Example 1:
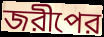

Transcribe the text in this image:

জরীপের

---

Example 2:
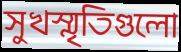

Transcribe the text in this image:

সুখস্মৃতিগুলো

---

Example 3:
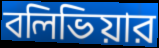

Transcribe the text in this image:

বলিভিয়ার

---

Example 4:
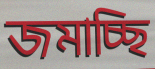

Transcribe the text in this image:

জমাচ্ছি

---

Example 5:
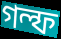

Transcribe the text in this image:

গল্ফ